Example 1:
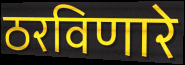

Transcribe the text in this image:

ठरविणारे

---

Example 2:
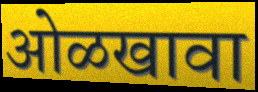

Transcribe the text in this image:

ओळखावा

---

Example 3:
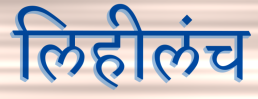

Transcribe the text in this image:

लिहीलंच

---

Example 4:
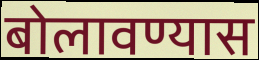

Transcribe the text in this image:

बोलावण्यास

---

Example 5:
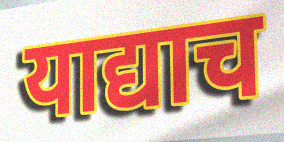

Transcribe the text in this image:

याद्याच